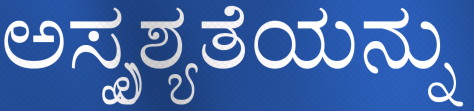
ಅಸ್ಪೃಶ್ಯತೆಯನ್ನು